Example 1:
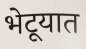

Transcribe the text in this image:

भेटूयात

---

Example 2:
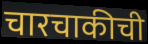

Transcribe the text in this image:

चारचाकीची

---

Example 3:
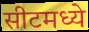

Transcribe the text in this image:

सीटमध्ये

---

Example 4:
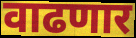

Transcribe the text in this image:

वाढणार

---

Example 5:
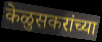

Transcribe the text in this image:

केळुसकरांच्या